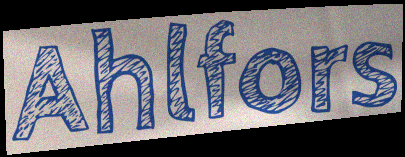
Ahlfors